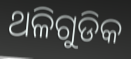
ଥଳିଗୁଡିକ